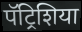
पॅट्रिशिया